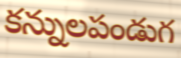
కన్నులపండుగ